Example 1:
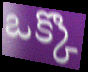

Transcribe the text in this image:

ఒక్కొ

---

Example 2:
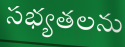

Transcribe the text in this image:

సభ్యతలను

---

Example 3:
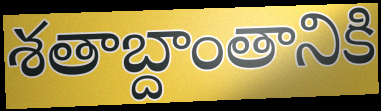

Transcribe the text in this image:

శతాబ్దాంతానికి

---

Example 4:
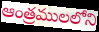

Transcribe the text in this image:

ఆంత్రములలోని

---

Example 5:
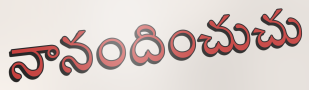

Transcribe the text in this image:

నానందించుచు